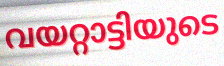
വയറ്റാട്ടിയുടെ